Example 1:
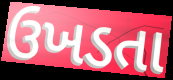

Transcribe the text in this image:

ઉખડતા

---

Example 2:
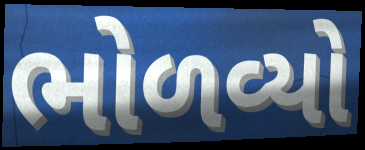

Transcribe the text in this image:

ભોળવ્યો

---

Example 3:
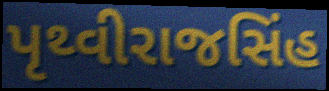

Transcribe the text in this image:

પૃથ્વીરાજસિંહ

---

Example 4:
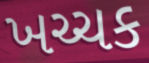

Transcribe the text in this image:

ખચ્ચક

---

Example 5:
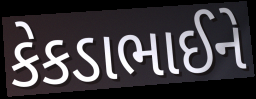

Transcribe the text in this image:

કેકડાભાઈને